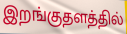
இறங்குதளத்தில்